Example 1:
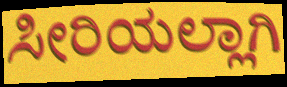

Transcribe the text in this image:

ಸೀರಿಯಲ್ಲಾಗಿ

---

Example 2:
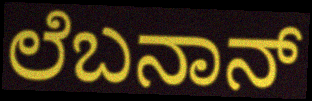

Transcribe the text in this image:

ಲೆಬನಾನ್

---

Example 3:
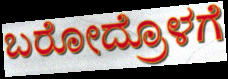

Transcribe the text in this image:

ಬರೋದ್ರೊಳಗೆ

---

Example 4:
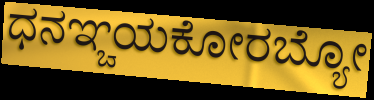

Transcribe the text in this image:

ಧನಞ್ಚಯಕೋರಬ್ಯೋ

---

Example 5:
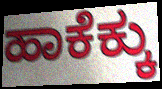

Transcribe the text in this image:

ಹಾಕೆಕ್ಕು